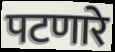
पटणारे